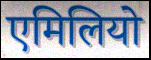
एमिलियो